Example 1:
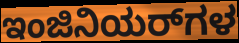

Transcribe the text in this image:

ಇಂಜಿನಿಯರ್‌ಗಳ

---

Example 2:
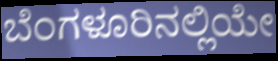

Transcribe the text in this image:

ಬೆಂಗಳೂರಿನಲ್ಲಿಯೇ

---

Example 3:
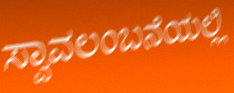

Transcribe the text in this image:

ಸ್ವಾವಲಂಬನೆಯಲ್ಲಿ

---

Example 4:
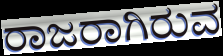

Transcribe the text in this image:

ರಾಜರಾಗಿರುವ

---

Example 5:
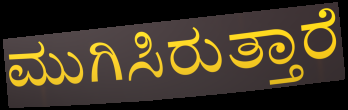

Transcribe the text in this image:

ಮುಗಿಸಿರುತ್ತಾರೆ